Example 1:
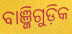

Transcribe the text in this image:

ବାଞ୍ଜିଗୁଡ଼ିକ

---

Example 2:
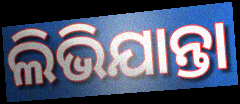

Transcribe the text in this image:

ଲିଭିଯାନ୍ତା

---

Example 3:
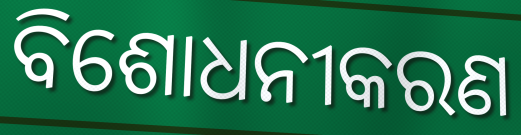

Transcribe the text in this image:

ବିଶୋଧନୀକରଣ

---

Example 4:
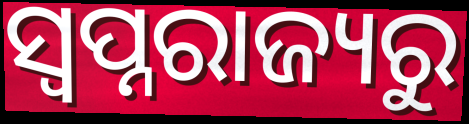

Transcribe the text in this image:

ସ୍ୱପ୍ନରାଜ୍ୟରୁ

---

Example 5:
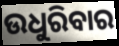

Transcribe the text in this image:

ଉଧୁରିବାର